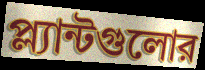
প্ল্যান্টগুলোর